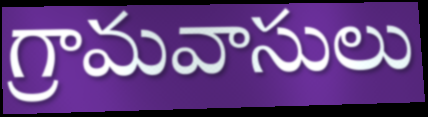
గ్రామవాసులు